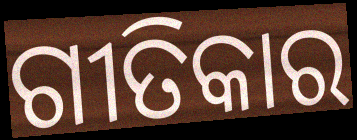
ଗୀତିକାର